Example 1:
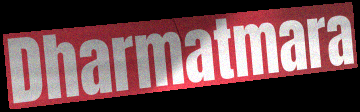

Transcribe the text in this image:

Dharmatmara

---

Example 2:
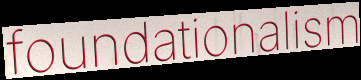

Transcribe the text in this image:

foundationalism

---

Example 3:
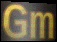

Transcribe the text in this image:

Gm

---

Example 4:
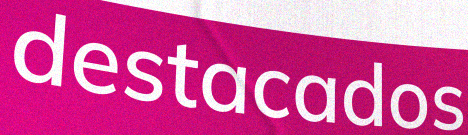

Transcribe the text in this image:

destacados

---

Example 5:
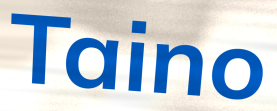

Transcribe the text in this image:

Taino